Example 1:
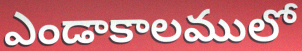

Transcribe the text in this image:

ఎండాకాలములో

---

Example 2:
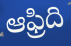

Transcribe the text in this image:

ఆఫ్రిది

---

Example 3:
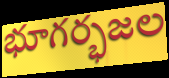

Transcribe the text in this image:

భూగర్భజల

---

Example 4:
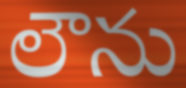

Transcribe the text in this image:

లౌను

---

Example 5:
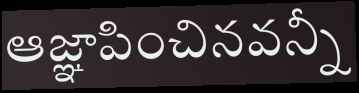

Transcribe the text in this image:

ఆజ్ఞాపించినవన్నీ